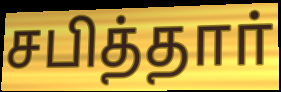
சபித்தார்